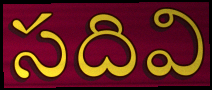
సదివి